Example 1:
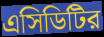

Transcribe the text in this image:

এসিডিটির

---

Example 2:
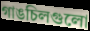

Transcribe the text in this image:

গাঙচিলগুলো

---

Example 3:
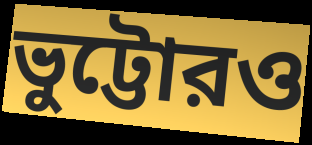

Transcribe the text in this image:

ভুট্টোরও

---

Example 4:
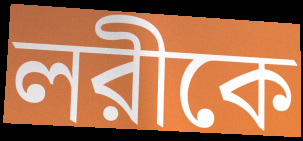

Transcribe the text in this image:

লরীকে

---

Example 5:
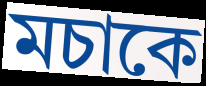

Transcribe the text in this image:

মচাকে